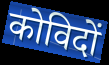
कोविदों